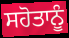
ਸਹੋਤਾਨੂੰ